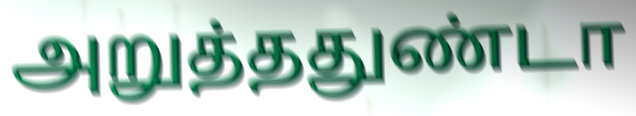
அறுத்ததுண்டா